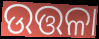
ଉତ୍ତଳା